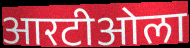
आरटीओला